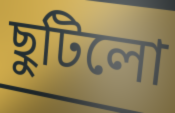
ছুটিলো